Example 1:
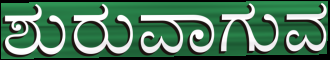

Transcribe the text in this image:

ಶುರುವಾಗುವ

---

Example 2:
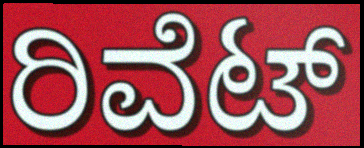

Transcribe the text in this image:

ರಿವೆಟ್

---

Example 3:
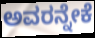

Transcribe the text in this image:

ಅವರನ್ನೇಕೆ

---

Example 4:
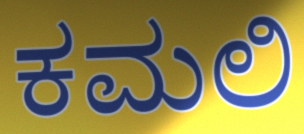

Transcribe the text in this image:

ಕಮಲಿ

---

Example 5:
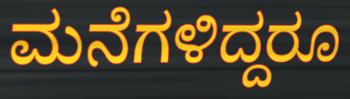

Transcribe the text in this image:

ಮನೆಗಳಿದ್ದರೂ